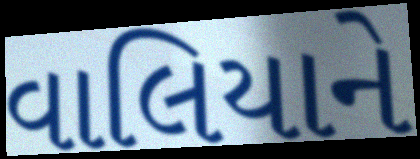
વાલિયાને